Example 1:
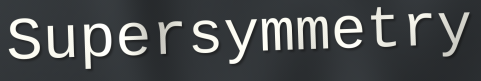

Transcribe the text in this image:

Supersymmetry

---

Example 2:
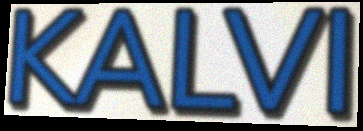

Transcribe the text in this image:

KALVI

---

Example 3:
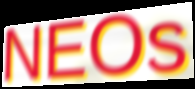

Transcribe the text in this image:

NEOs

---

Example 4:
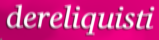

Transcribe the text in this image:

dereliquisti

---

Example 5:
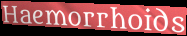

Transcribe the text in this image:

Haemorrhoids